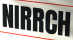
NIRRCH